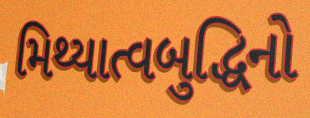
મિથ્યાત્વબુદ્ધિનો